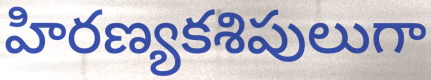
హిరణ్యకశిపులుగా